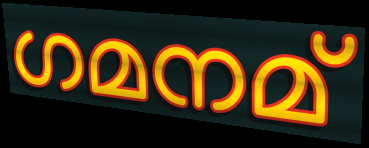
ഗമനമ്